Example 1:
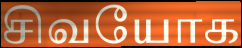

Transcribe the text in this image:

சிவயோக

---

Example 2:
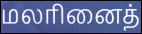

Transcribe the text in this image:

மலரினைத்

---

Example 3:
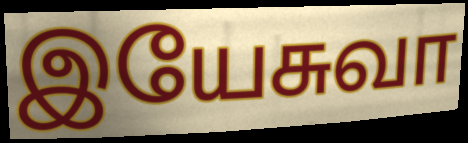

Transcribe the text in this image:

இயேசுவா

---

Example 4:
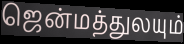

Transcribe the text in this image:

ஜென்மத்துலயும்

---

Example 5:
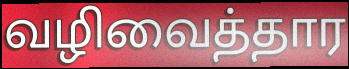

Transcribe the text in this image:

வழிவைத்தார